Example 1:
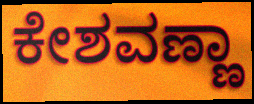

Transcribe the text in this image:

ಕೇಶವಣ್ಣಾ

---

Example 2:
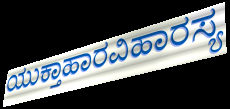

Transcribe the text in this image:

ಯುಕ್ತಾಹಾರವಿಹಾರಸ್ಯ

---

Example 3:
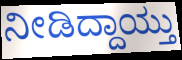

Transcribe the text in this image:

ನೀಡಿದ್ದಾಯ್ತು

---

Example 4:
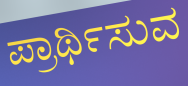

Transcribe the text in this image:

ಪ್ರಾರ್ಥಿಸುವ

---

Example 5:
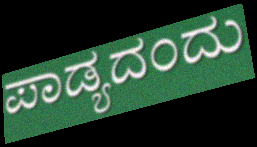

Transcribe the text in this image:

ಪಾಡ್ಯದಂದು